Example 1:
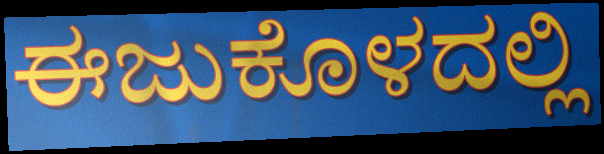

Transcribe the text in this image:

ಈಜುಕೊಳದಲ್ಲಿ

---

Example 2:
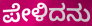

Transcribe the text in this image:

ಪೇಳಿದನು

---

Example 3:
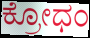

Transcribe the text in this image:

ಕ್ರೋಧಂ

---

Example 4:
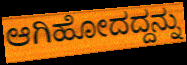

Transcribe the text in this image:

ಆಗಿಹೋದದ್ದನ್ನು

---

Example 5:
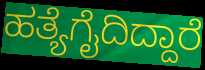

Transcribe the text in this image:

ಹತ್ಯೆಗೈದಿದ್ದಾರೆ